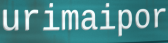
urimaipor